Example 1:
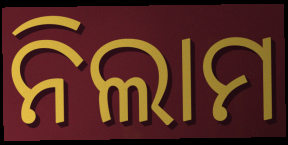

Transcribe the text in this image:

ନିଲାମ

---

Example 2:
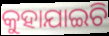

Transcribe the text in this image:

କୁହାଯାଇଚି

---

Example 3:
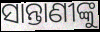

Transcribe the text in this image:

ସାନ୍ତାଣୀଙ୍କୁ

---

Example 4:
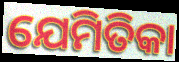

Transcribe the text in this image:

ଯେମିତିକା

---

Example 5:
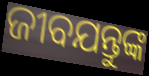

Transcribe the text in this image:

ଜୀବଯନ୍ତୁଙ୍କ